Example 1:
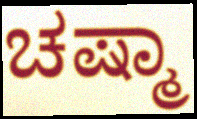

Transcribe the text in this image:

ಚಷ್ಮಾ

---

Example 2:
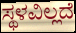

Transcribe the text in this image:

ಸ್ಥಳವಿಲ್ಲದೆ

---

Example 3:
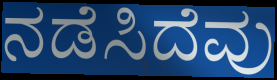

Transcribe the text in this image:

ನಡೆಸಿದೆವು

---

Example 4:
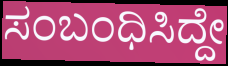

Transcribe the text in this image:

ಸಂಬಂಧಿಸಿದ್ದೇ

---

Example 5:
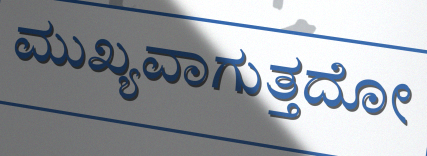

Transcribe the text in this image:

ಮುಖ್ಯವಾಗುತ್ತದೋ